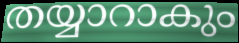
തയ്യാറാകും